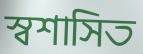
স্বশাসিত